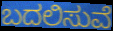
ಬದಲಿಸುವೆ